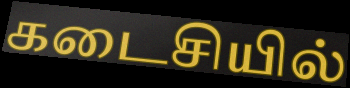
கடைசியில்